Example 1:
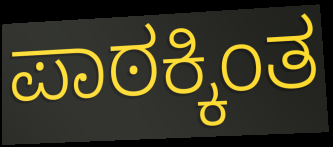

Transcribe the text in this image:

ಪಾಠಕ್ಕಿಂತ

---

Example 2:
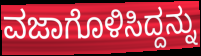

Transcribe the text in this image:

ವಜಾಗೊಳಿಸಿದ್ದನ್ನು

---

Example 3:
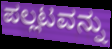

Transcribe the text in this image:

ಪಲ್ಲಟವನ್ನು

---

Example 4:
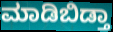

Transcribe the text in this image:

ಮಾಡಿಬಿಡ್ತಾ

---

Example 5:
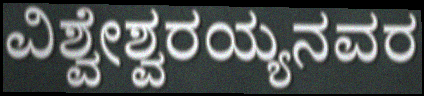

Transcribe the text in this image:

ವಿಶ್ವೇಶ್ವರಯ್ಯನವರ